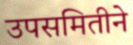
उपसमितीने